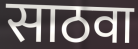
साठवा